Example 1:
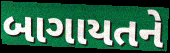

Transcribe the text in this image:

બાગાયતને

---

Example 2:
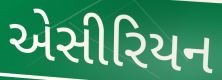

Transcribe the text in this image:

એસીરિયન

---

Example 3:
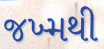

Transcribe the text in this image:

જખ્મથી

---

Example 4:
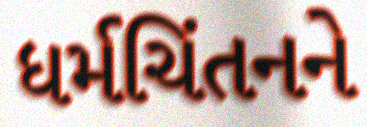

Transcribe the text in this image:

ધર્મચિંતનને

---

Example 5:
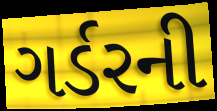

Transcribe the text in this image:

ગર્ડરની